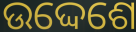
ଉଦ୍ଦେଶେ